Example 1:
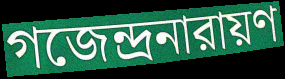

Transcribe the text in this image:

গজেন্দ্রনারায়ণ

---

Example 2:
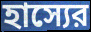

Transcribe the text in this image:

হাস্যের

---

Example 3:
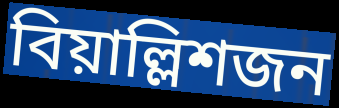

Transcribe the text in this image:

বিয়াল্লিশজন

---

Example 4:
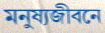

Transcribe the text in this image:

মনুষ্যজীবনে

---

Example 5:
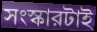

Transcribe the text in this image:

সংস্কারটাই